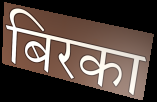
बिरका